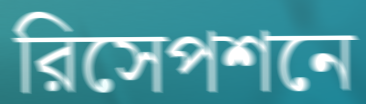
রিসেপশনে